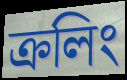
ক্রলিং